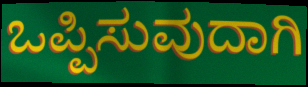
ಒಪ್ಪಿಸುವುದಾಗಿ